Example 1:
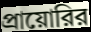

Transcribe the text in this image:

প্রায়োরির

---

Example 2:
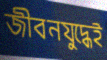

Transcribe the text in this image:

জীবনযুদ্ধেই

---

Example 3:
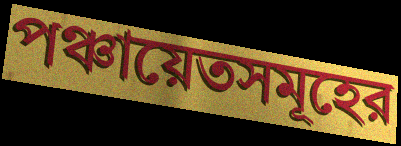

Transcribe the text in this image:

পঞ্চায়েতসমূহের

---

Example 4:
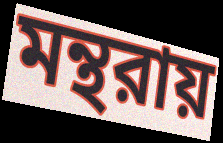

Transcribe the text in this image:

মন্থরায়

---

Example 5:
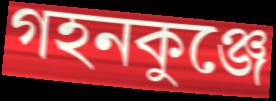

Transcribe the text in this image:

গহনকুঞ্জে